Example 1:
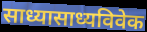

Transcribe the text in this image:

साध्यासाध्यविवेक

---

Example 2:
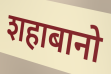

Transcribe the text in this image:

शहाबानो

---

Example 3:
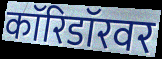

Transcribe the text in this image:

कॉरिडॉरवर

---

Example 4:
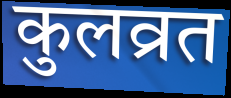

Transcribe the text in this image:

कुलव्रत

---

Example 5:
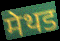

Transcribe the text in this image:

मेथड